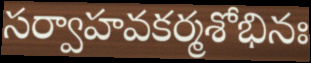
సర్వాహవకర్మశోభినః